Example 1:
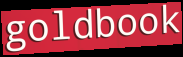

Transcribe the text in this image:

goldbook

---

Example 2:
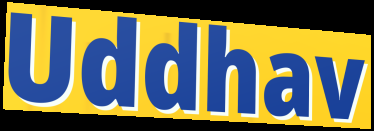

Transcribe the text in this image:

Uddhav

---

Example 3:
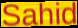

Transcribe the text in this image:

Sahid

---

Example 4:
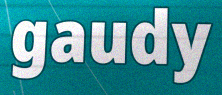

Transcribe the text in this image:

gaudy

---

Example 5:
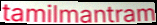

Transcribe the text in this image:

tamilmantram